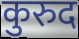
कुरुद